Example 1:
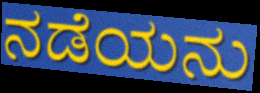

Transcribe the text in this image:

ನಡೆಯನು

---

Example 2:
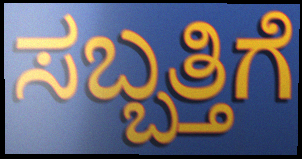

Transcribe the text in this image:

ಸಬ್ಬತ್ತಿಗೆ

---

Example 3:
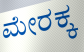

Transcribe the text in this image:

ಮೇರಕ್ಕ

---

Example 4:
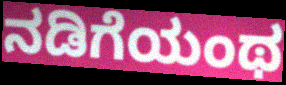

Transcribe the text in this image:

ನಡಿಗೆಯಂಥ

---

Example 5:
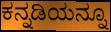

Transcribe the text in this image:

ಕನ್ನಡಿಯನ್ನೂ